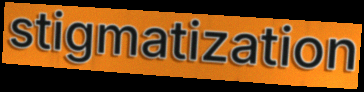
stigmatization